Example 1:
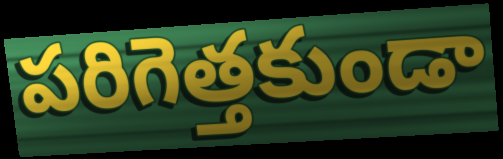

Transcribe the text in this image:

పరిగెత్తకుండా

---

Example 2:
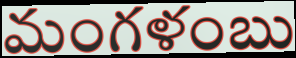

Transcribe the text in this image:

మంగళంబు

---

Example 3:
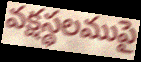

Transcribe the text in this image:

వక్షస్థలముపై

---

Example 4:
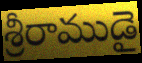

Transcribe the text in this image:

శ్రీరాముడై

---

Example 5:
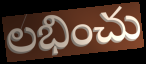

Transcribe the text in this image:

లభించు